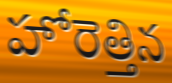
హోరెత్తిన